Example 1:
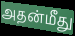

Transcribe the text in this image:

அதன்மீது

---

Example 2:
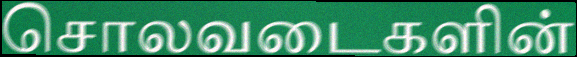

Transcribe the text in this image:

சொலவடைகளின்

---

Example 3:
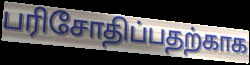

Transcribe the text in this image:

பரிசோதிப்பதற்காக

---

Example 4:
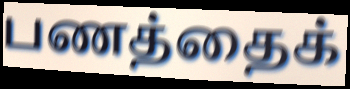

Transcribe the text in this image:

பணத்தைக்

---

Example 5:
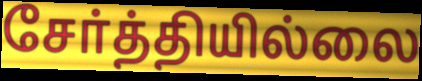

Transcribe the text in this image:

சேர்த்தியில்லை